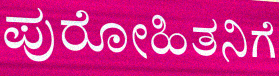
ಪುರೋಹಿತನಿಗೆ